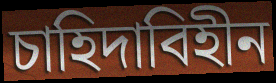
চাহিদাবিহীন